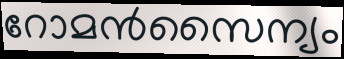
റോമൻസൈന്യം